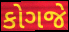
કોગજે